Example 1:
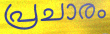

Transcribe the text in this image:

പ്രചാരം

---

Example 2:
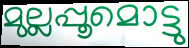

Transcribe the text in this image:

മുല്ലപ്പൂമൊട്ടു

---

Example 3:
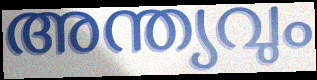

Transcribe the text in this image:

അന്ത്യവും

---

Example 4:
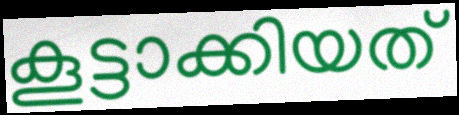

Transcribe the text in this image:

കൂട്ടാക്കിയത്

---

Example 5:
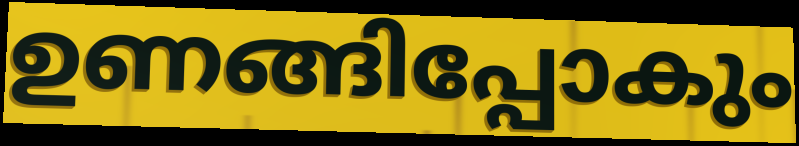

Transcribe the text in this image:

ഉണങ്ങിപ്പോകും